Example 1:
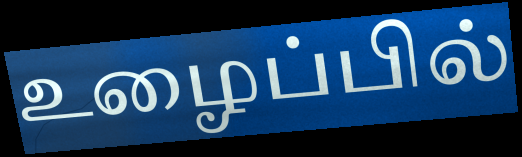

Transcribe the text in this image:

உழைப்பில்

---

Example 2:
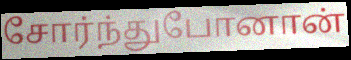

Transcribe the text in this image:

சோர்ந்துபோனான்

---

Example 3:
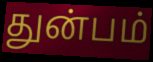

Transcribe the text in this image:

துன்பம்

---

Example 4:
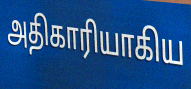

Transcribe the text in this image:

அதிகாரியாகிய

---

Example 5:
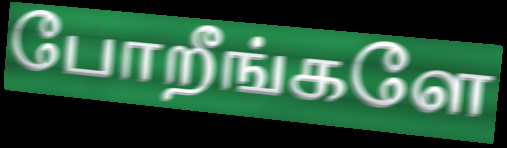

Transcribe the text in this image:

போறீங்களே